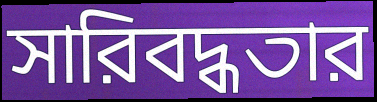
সারিবদ্ধতার